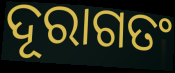
ଦୂରାଗତଂ